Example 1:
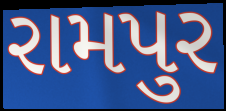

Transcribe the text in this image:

રામપુર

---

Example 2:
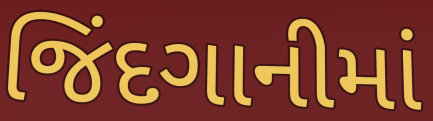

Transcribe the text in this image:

જિંદગાનીમાં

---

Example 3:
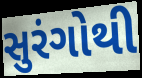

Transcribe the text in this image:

સુરંગોથી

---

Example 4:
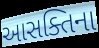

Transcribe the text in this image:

આસક્તિના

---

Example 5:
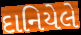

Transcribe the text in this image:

દાનિયેલે